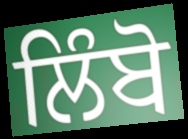
ਲਿੰਬੋ